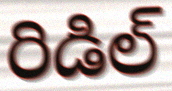
రిడిల్